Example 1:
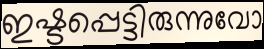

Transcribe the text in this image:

ഇഷ്ടപ്പെട്ടിരുന്നുവോ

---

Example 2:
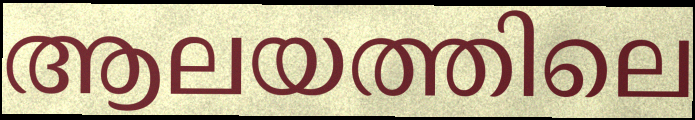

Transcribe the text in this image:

ആലയത്തിലെ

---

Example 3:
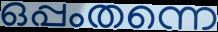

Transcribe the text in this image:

ഒപ്പംതന്നെ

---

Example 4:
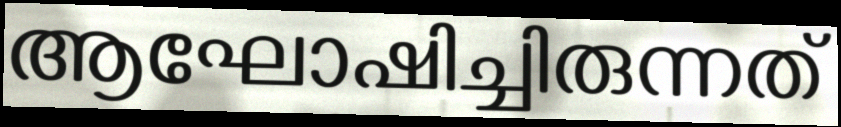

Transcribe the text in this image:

ആഘോഷിച്ചിരുന്നത്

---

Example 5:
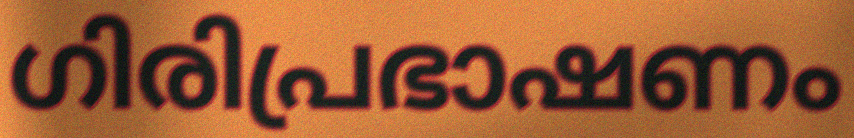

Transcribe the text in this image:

ഗിരിപ്രഭാഷണം